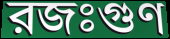
রজঃগুণ